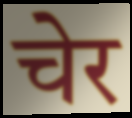
चेर